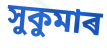
সুকুমাৰ